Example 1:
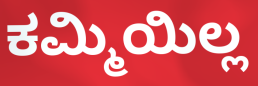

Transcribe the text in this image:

ಕಮ್ಮಿಯಿಲ್ಲ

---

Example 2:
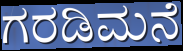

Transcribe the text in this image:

ಗರಡಿಮನೆ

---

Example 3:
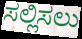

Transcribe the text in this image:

ಸಲ್ಲಿಸಲು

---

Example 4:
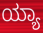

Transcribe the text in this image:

ಯ್ಯಾ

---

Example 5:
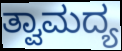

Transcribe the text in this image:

ತ್ವಾಮದ್ಯ